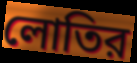
লোতির